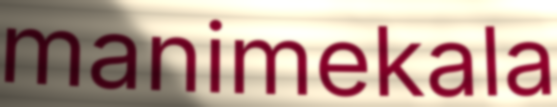
manimekala